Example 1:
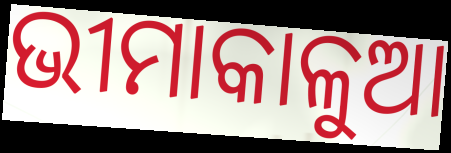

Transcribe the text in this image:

ଭୀମାକାଳୁଆ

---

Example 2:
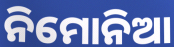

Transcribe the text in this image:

ନିମୋନିଆ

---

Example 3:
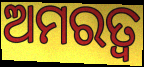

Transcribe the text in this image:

ଅମରତ୍ବ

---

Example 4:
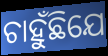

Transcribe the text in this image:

ଚାହୁଁଛିଯେ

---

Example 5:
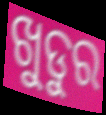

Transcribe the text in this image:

ଖୁଡୁର